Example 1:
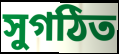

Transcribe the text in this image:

সুগঠিত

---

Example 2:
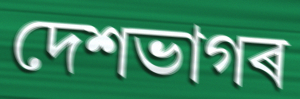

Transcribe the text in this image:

দেশভাগৰ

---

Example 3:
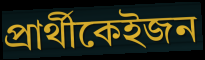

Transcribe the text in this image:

প্ৰাৰ্থীকেইজন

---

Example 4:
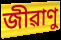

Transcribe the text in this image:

জীৱাণু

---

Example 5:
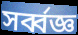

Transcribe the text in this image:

সৰ্ব্বজ্ঞ